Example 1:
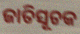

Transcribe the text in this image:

ଜାତିସୂଚକ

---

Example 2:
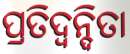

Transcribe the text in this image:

ପ୍ରତିଦ୍ଵନ୍ଦିତା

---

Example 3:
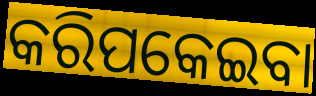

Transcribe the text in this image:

କରିପକେଇବା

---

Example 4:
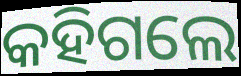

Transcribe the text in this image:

କହିଗଲେ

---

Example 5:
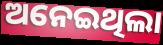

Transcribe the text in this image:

ଅନେଇଥିଲା